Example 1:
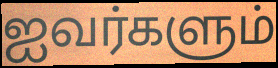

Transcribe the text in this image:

ஐவர்களும்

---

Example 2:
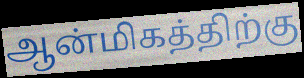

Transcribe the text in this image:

ஆன்மிகத்திற்கு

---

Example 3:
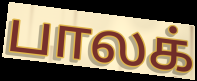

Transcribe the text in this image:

பாலக்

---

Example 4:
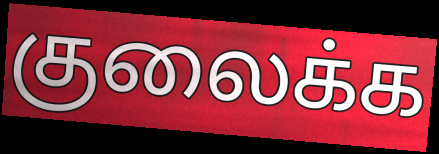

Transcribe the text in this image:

குலைக்க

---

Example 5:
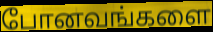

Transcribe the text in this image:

போனவங்களை